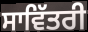
ਸਾਵਿੱਤਰੀ